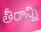
తీరాన్ని